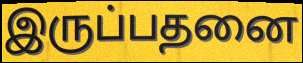
இருப்பதனை